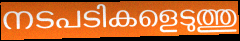
നടപടികളെടുത്തു